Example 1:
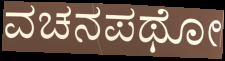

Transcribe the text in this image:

ವಚನಪಥೋ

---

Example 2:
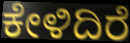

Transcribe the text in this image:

ಕೇಳಿದಿರೆ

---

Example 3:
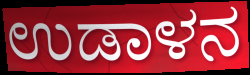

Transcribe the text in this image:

ಉಡಾಳನ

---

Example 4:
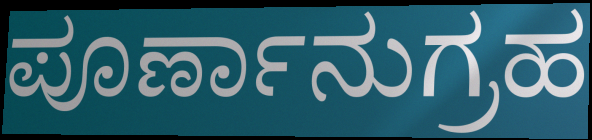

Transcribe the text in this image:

ಪೂರ್ಣಾನುಗ್ರಹ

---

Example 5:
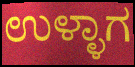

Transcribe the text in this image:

ಉಳ್ಳಾಗ